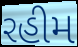
રહીમ